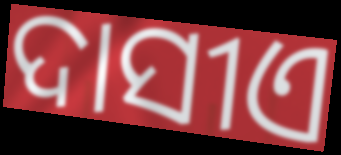
ଦାସୀଏ